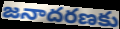
జనాదరణకు